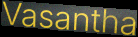
Vasantha